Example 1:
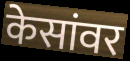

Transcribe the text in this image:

केसांवर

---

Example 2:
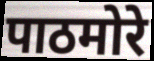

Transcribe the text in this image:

पाठमोरे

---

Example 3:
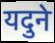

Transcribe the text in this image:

यदुने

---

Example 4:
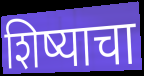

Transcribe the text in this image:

शिष्याचा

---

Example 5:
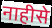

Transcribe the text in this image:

नाहीसे